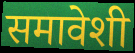
समावेशी